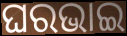
ଘରଭାଇ